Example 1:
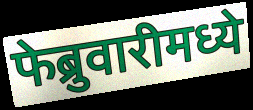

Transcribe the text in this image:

फेब्रुवारीमध्ये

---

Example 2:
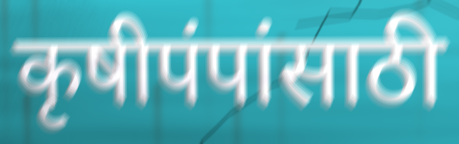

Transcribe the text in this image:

कृषीपंपांसाठी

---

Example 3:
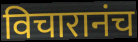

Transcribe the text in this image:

विचारानंच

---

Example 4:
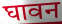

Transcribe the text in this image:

घावन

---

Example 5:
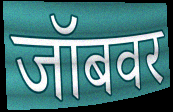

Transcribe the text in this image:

जॉबवर